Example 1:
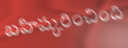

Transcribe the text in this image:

బహిష్కరించింది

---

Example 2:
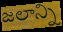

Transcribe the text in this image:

జలాన్ని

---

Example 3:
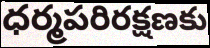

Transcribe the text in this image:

ధర్మపరిరక్షణకు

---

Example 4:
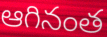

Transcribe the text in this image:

ఆగినంత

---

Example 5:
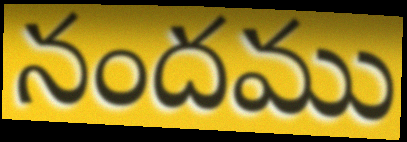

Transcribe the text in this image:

నందము